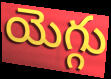
యెగ్గు